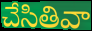
చేసితివా